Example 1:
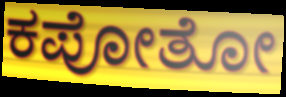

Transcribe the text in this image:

ಕಪೋತೋ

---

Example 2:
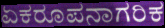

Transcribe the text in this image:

ಏಕರೂಪನಾಗರಿಕ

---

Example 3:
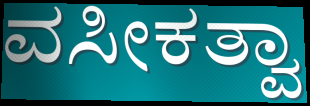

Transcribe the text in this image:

ವಸೀಕತ್ವಾ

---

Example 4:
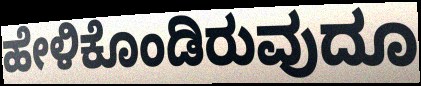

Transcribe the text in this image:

ಹೇಳಿಕೊಂಡಿರುವುದೂ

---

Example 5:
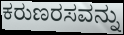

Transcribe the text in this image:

ಕರುಣರಸವನ್ನು